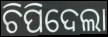
ଚିପିଦେଲା